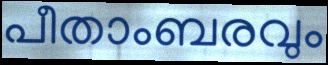
പീതാംബരവും